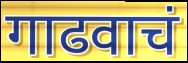
गाढवाचं